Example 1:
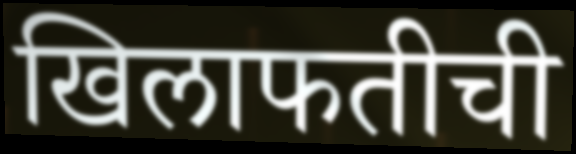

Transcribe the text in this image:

खिलाफतीची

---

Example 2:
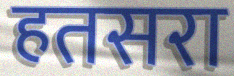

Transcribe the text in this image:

हतसरा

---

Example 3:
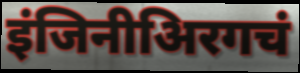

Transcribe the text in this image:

इंजिनीअिरगचं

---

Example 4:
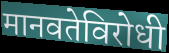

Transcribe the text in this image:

मानवतेविरोधी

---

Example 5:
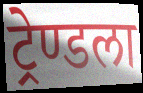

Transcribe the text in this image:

ट्रेण्डला